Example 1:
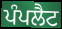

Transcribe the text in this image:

ਪੰਪਲੈਟ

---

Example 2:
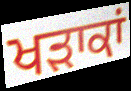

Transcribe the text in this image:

ਖੜਾਕਾਂ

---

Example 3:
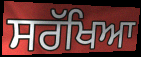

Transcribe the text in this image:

ਸਰੱਖਿਆ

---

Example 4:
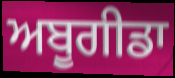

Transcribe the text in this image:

ਅਬੂਗੀਡਾ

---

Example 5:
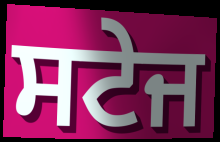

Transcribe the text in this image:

ਸਟੇਜ